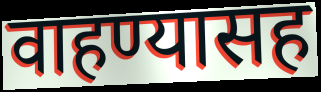
वाहण्यासह